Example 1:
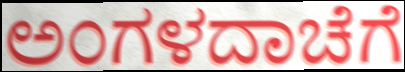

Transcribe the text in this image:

ಅಂಗಳದಾಚೆಗೆ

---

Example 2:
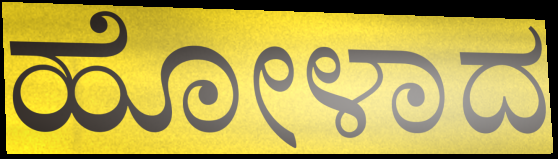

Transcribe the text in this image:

ಹೋಳಾದ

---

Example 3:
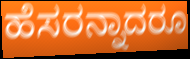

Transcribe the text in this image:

ಹೆಸರನ್ನಾದರೂ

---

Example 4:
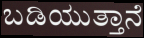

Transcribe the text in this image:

ಬಡಿಯುತ್ತಾನೆ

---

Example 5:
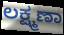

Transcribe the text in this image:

ಲಕ್ಷ್ಮಣಾ